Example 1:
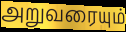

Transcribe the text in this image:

அறுவரையும்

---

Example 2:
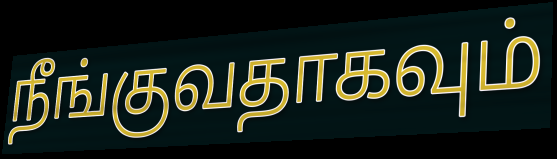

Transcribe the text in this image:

நீங்குவதாகவும்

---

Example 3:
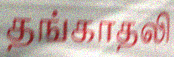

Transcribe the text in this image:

தங்காதலி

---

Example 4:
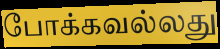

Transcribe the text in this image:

போக்கவல்லது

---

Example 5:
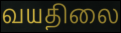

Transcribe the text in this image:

வயதிலை